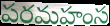
పరమహంస